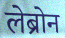
लेब्रोन